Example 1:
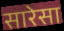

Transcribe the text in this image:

सारेसा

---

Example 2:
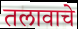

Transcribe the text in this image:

तलावाचे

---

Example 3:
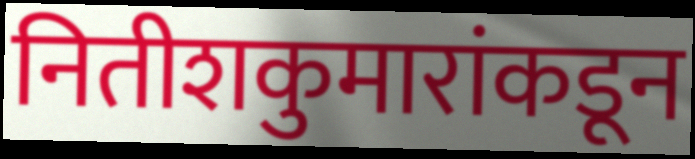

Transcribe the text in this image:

नितीशकुमारांकडून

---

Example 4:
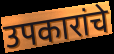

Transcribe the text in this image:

उपकारांचे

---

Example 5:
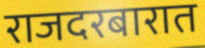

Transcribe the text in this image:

राजदरबारात